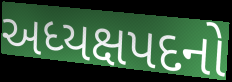
અધ્યક્ષપદનો